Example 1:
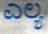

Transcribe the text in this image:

ಎಲ್ಯ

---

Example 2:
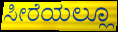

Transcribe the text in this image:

ಸೀರೆಯಲ್ಲೂ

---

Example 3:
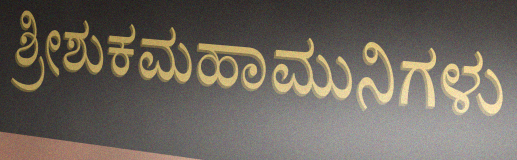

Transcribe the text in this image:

ಶ್ರೀಶುಕಮಹಾಮುನಿಗಳು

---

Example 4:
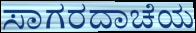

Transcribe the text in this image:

ಸಾಗರದಾಚೆಯ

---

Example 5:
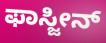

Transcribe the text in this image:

ಫಾಸ್ಜೀನ್